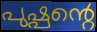
പുഷ്പന്റെ